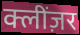
क्लींज़र